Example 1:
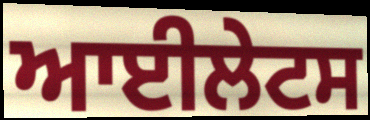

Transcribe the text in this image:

ਆਈਲੇਟਸ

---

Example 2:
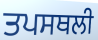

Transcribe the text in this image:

ਤਪਸਥਲੀ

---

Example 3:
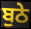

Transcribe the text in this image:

ਬੁਠੇ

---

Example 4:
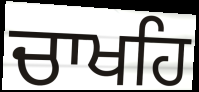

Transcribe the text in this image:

ਚਾਖਹਿ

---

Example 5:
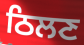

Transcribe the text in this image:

ਠਿਲਣ